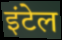
इंटेल